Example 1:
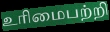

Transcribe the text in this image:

உரிமைபற்றி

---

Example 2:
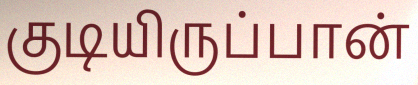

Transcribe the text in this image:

குடியிருப்பான்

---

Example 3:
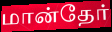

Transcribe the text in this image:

மான்தேர்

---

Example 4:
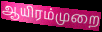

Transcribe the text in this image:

ஆயிரம்முறை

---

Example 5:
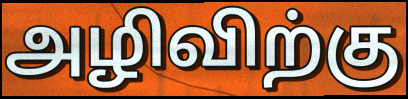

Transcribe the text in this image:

அழிவிற்கு